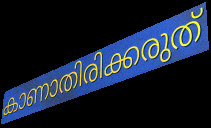
കാണാതിരിക്കരുത്